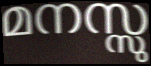
മനസ്സു